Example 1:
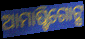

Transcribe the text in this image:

ଆମାଷ୍ଟିଗୋଟ୍ସ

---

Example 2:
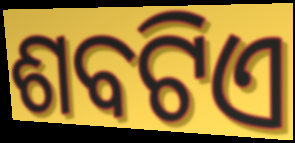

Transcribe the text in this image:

ଶବଟିଏ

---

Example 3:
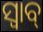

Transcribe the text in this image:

ସ୍ବାବ୍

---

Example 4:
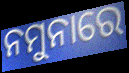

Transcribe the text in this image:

ନମୁନାରେ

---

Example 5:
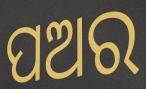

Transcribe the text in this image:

ପଅର